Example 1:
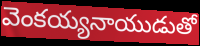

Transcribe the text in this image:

వెంకయ్యనాయుడుతో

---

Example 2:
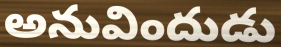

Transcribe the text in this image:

అనువిందుడు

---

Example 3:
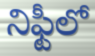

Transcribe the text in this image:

నిఫ్టీలో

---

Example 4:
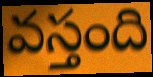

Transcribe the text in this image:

వస్తంది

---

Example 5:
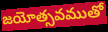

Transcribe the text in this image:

జయోత్సవముతో